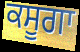
ਕਸੂਗਾ